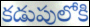
కడుపులోకి